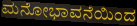
ಮನೋಭಾವನೆಯಿಂದ